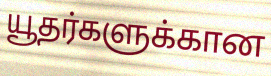
யூதர்களுக்கான